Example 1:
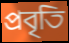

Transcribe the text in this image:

প্রবৃতি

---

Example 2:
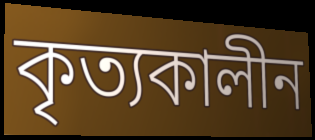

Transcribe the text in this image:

কৃত্যকালীন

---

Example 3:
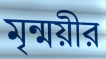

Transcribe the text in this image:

মৃন্ময়ীর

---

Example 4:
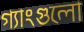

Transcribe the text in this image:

গ্যাংগুলো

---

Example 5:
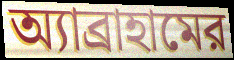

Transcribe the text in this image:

অ্যাব্রাহামের